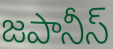
జపానీస్